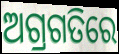
ଅଗ୍ରଗତିରେ